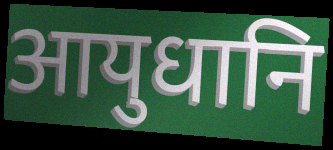
आयुधानि